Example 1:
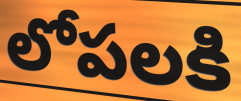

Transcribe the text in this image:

లోపలకి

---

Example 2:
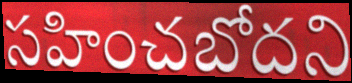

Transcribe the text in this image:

సహించబోదని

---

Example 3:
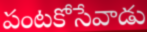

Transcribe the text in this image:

పంటకోసేవాడు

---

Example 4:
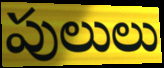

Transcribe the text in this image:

పులులు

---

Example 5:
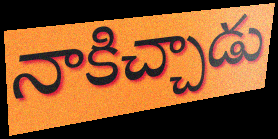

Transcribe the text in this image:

నాకిచ్చాడు